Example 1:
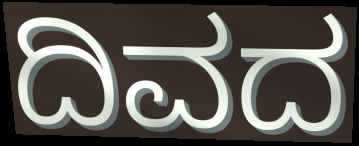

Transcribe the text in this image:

ದಿವದ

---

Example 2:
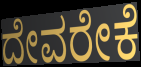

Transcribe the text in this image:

ದೇವರೇಕೆ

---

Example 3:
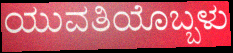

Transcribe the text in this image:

ಯುವತಿಯೊಬ್ಬಳು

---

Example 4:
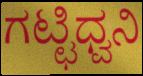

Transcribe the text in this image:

ಗಟ್ಟಿಧ್ವನಿ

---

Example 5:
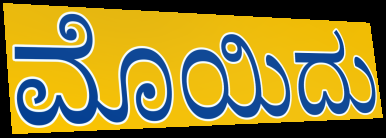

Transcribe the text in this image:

ಮೊಯಿದು